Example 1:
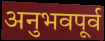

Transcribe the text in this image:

अनुभवपूर्व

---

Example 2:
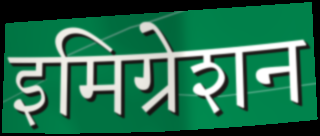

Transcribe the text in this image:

इमिग्रेशन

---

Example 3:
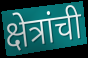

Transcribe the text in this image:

क्षेत्रांची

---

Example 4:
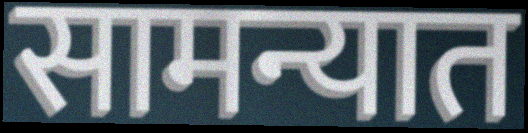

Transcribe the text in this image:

सामन्यात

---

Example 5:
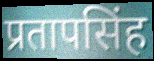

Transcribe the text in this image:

प्रतापसिंह